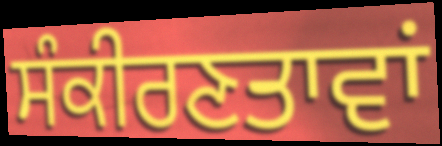
ਸੰਕੀਰਣਤਾਵਾਂ